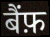
बैंफ़